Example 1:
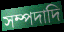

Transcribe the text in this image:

সম্পদাদি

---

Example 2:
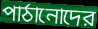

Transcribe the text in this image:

পাঠানোদের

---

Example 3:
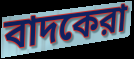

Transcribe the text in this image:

বাদকেরা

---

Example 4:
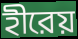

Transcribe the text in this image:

হীরেয়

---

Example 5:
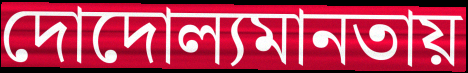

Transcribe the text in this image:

দোদোল্যমানতায়